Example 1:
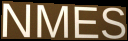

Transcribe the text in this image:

NMES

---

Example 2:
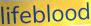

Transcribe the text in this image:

lifeblood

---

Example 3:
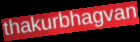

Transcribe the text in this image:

thakurbhagvan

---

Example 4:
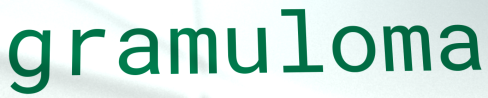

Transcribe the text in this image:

gramuloma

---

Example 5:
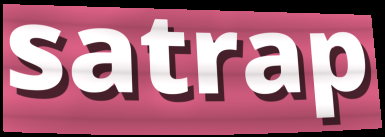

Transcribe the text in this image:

satrap